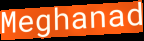
Meghanad